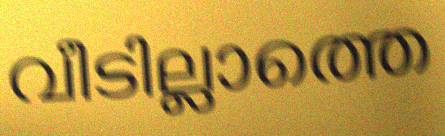
വീടില്ലാത്തെ